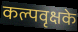
कल्पवृक्षके